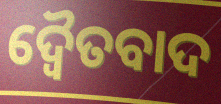
ଦ୍ୱୈତବାଦ